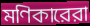
মণিকারেরা